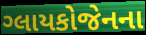
ગ્લાયકોજેનના